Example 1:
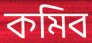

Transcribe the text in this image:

কমিব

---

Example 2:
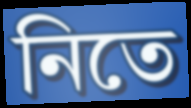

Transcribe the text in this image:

নিতে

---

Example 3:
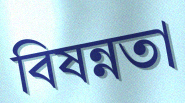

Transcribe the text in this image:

বিষন্নতা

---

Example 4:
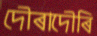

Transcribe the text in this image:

দৌৰাদৌৰি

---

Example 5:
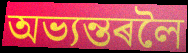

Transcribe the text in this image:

অভ্যন্তৰলৈ